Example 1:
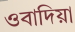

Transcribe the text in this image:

ওবাদিয়া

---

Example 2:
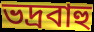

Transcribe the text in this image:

ভদ্রবাহু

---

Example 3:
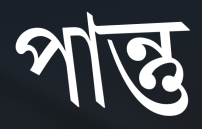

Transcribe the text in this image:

পান্তু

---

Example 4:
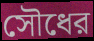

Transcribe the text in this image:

সৌধের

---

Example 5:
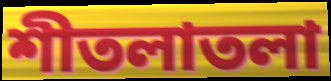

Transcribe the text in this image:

শীতলাতলা